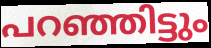
പറഞ്ഞിട്ടും